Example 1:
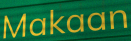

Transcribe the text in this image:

Makaan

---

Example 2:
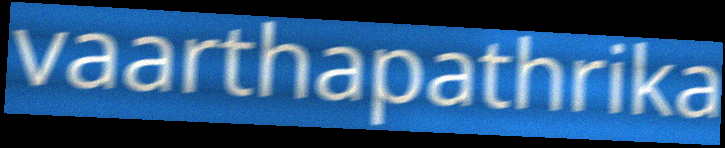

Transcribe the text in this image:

vaarthapathrika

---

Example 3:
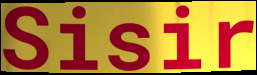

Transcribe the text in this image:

Sisir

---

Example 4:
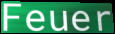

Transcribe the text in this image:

Feuer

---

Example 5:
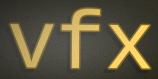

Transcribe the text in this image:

vfx